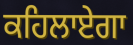
ਕਹਿਲਾਏਗਾ